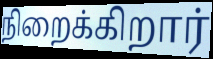
நிறைக்கிறார்